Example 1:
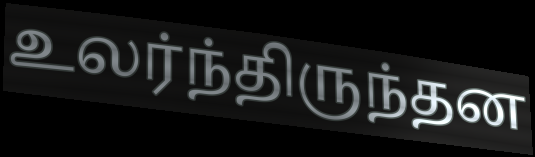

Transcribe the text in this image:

உலர்ந்திருந்தன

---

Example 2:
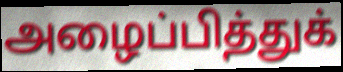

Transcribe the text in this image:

அழைப்பித்துக்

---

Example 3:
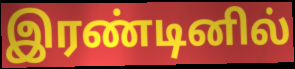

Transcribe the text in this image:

இரண்டினில்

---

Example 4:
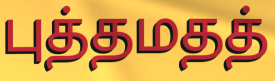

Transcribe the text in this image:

புத்தமதத்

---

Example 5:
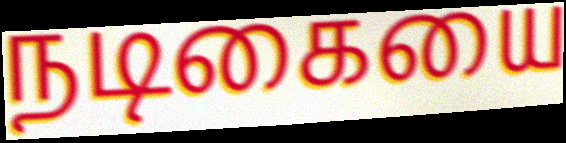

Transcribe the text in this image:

நடிகையை